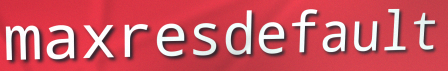
maxresdefault